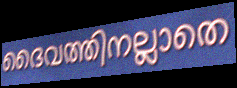
ദൈവത്തിനല്ലാതെ